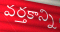
వర్తకాన్ని